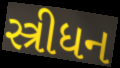
સ્ત્રીધન